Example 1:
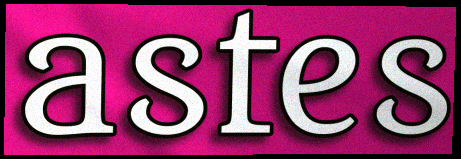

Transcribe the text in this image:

astes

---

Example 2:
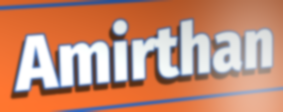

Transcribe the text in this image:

Amirthan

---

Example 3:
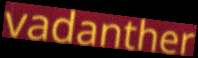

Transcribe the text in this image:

vadanther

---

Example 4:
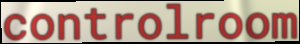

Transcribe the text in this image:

controlroom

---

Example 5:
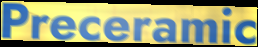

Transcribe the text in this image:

Preceramic